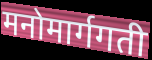
मनोमार्गगती